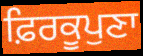
ਫ਼ਿਰਕੂਪੁਣਾ